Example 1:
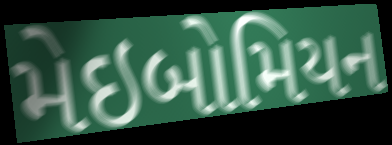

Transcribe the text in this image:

મેઇબોમિયન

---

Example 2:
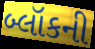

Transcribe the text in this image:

બ્લૉકની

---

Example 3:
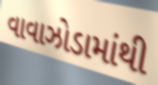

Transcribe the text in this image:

વાવાઝોડામાંથી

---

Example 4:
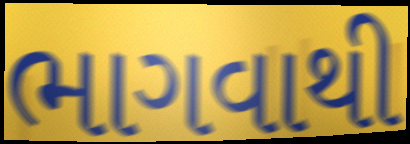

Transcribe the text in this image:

ભાગવાથી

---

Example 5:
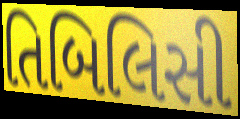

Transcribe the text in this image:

તિબિલિસી